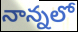
నాన్నలో